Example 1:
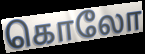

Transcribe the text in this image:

கொலோ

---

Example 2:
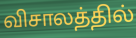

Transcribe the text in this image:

விசாலத்தில்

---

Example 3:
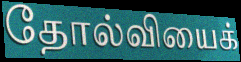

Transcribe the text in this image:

தோல்வியைக்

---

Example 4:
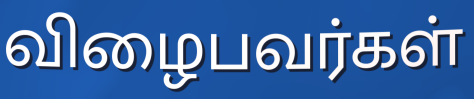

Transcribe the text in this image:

விழைபவர்கள்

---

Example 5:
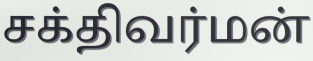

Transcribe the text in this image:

சக்திவர்மன்